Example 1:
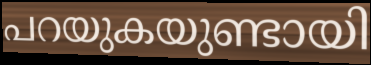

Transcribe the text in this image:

പറയുകയുണ്ടായി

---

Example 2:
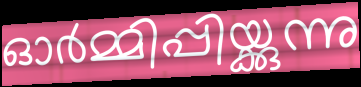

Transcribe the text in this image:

ഓർമ്മിപ്പിയ്ക്കുന്നു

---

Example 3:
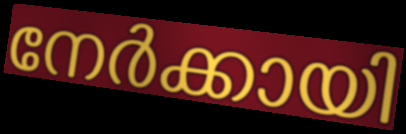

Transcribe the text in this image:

നേർക്കായി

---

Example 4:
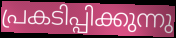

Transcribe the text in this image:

പ്രകടിപ്പിക്കുന്നു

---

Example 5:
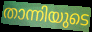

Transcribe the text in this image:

താന്നിയുടെ